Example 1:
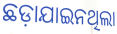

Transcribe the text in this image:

ଛଡ଼ାଯାଇନଥିଲା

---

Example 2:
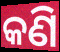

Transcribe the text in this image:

କଣି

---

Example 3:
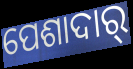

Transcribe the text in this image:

ପେଶାଦାର୍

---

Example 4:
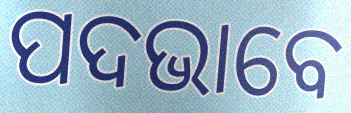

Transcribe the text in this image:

ପଦଭାବେ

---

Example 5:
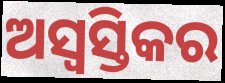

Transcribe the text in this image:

ଅସ୍ୱସ୍ତିକର